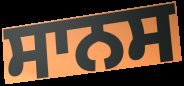
ਸਾਨਸ